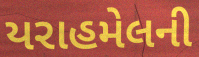
યરાહમેલની